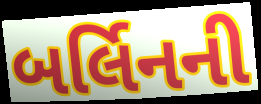
બર્લિનની